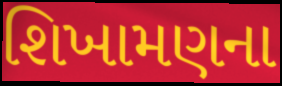
શિખામણના